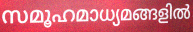
സമൂഹമാധ്യമങ്ങളിൽ